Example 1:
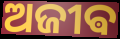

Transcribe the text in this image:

ଅଜୀଵ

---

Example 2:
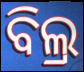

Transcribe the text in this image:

ବିଲ୍ର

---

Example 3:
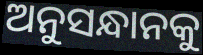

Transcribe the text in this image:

ଅନୁସନ୍ଧାନକୁ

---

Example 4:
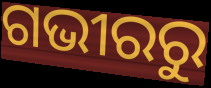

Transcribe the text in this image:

ଗଭୀରରୁ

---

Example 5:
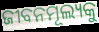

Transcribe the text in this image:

ଜୀବନମୂଲ୍ୟକୁ